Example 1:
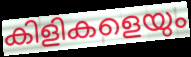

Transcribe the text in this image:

കിളികളെയും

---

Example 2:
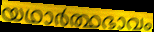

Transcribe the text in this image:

യഥാർത്ഥഭാവം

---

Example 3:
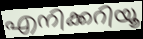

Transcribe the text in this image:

എനിക്കറിയൂ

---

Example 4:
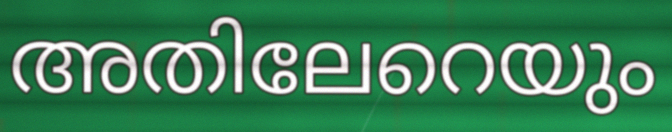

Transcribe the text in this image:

അതിലേറെയും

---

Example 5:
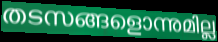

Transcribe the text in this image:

തടസങ്ങളൊന്നുമില്ല